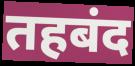
तहबंद